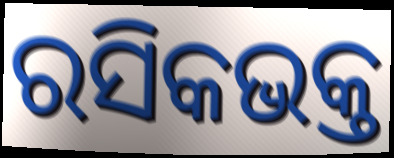
ରସିକଭକ୍ତ